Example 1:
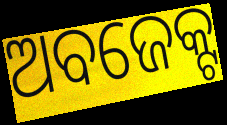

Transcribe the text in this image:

ଅବଜେକ୍ଟ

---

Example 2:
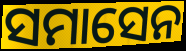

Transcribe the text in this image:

ସମାସେନ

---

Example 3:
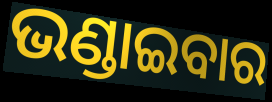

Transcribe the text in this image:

ଭଣ୍ଡାଇବାର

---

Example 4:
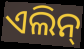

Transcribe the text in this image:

ଏଲିନ୍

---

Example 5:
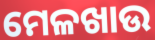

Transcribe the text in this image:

ମେଳଖାଉ